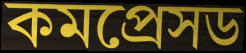
কমপ্রেসড